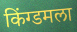
किंग्डमला